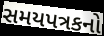
સમયપત્રકનો